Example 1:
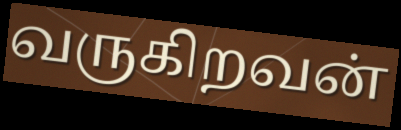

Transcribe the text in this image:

வருகிறவன்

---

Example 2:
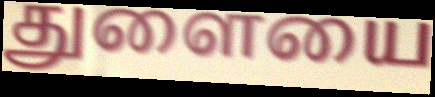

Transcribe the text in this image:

துளையை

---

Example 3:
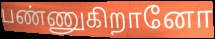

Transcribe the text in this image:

பண்ணுகிறானோ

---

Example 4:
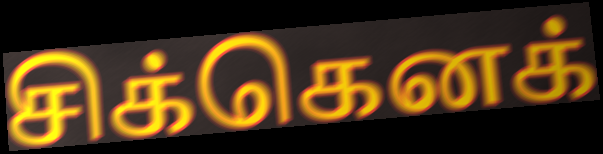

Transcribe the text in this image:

சிக்கெனக்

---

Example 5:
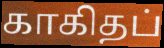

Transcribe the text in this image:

காகிதப்